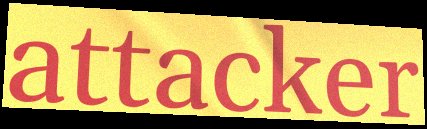
attacker